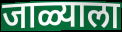
जाळ्याला